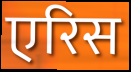
एरिस